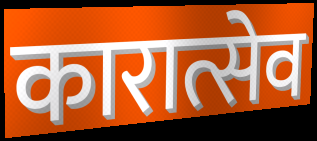
कारात्सेव